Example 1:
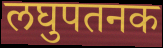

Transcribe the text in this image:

लघुपतनक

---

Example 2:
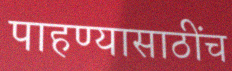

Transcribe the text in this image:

पाहण्यासाठींच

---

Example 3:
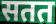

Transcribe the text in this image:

सतत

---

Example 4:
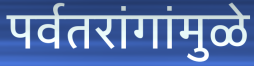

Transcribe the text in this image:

पर्वतरांगांमुळे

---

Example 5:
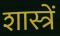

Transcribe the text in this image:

शास्त्रें